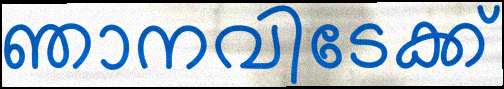
ഞാനവിടേക്ക്